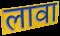
लावा